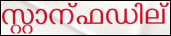
സ്റ്റാന്ഫഡില്